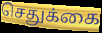
செதுக்கை